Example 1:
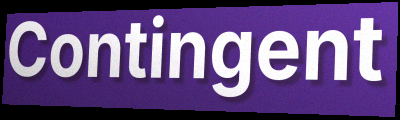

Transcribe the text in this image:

Contingent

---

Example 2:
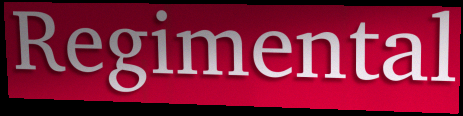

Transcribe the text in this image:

Regimental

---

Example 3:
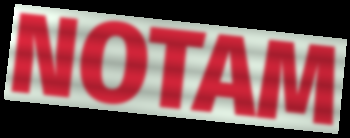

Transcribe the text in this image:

NOTAM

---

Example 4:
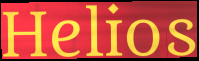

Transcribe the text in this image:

Helios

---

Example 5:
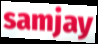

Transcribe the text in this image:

samjay